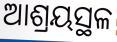
ଆଶ୍ରୟସ୍ଥଳ